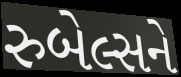
રુબેલ્સને